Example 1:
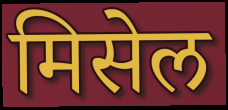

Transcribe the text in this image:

मिसेल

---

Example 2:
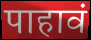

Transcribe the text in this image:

पाहावं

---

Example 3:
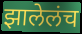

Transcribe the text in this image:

झालेलंच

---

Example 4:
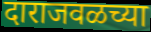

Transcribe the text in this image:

दाराजवळच्या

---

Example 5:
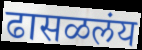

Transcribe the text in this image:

ढासळलंय